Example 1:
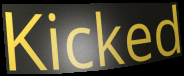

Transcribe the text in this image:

Kicked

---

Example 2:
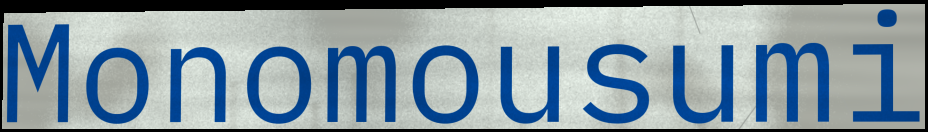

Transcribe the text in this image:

Monomousumi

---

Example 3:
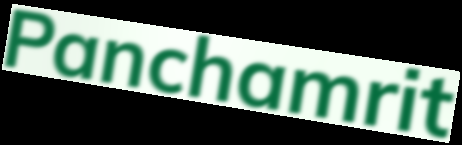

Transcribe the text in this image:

Panchamrit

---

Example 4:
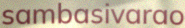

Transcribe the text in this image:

sambasivarao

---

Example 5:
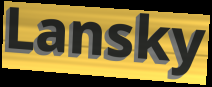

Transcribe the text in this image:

Lansky